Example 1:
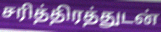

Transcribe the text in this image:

சரித்திரத்துடன்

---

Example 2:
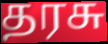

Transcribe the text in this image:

தரசு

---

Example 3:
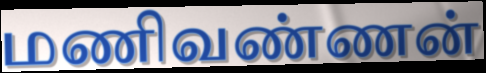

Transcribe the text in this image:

மணிவண்ணன்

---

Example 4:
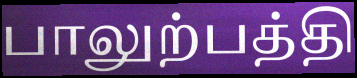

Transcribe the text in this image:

பாலுற்பத்தி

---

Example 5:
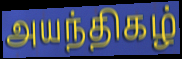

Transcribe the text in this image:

அயந்திகழ்